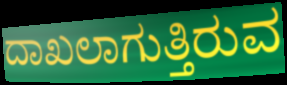
ದಾಖಲಾಗುತ್ತಿರುವ